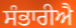
ਸੰਭਾਰੀਐ